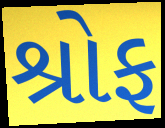
શ્રોફ